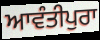
ਆਵੰਤੀਪੁਰਾ